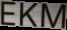
EKM